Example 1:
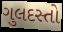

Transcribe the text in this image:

ગુલદસ્તો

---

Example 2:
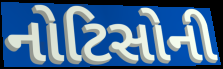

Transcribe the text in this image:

નોટિસોની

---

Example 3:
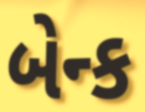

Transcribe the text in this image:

બેન્ક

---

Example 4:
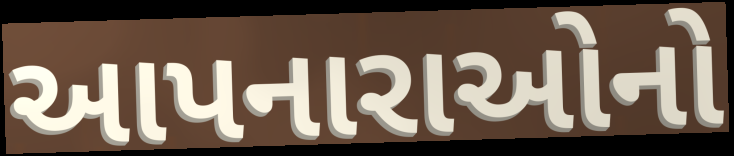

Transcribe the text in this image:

આપનારાઓનો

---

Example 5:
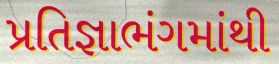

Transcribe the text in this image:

પ્રતિજ્ઞાભંગમાંથી